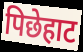
पिछेहाट